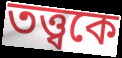
তত্ত্বকে